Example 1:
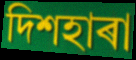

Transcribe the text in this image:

দিশহাৰা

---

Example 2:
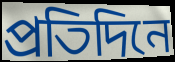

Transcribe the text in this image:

প্ৰতিদিনে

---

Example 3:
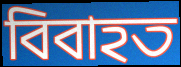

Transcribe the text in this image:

বিবাহত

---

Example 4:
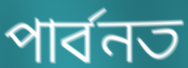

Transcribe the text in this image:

পাৰ্বনত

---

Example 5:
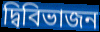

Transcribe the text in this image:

দ্বিবিভাজন